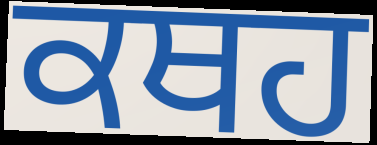
ਕਥਹ